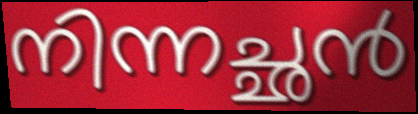
നിന്നച്ഛൻ